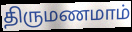
திருமணமாம்